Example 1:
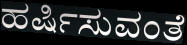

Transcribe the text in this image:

ಹರ್ಷಿಸುವಂತೆ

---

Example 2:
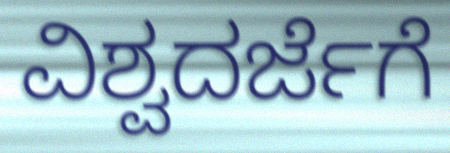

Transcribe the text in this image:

ವಿಶ್ವದರ್ಜೆಗೆ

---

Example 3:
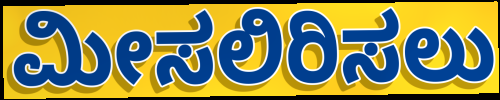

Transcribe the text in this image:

ಮೀಸಲಿರಿಸಲು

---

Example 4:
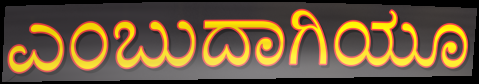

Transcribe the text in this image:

ಎಂಬುದಾಗಿಯೂ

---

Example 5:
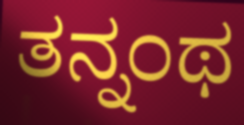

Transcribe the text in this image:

ತನ್ನಂಥ